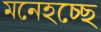
মনেহচ্ছে